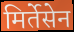
मिर्तेसेन